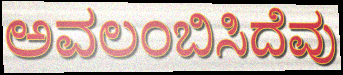
ಅವಲಂಬಿಸಿದೆವು